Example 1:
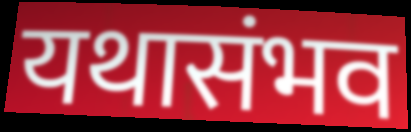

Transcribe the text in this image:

यथासंभव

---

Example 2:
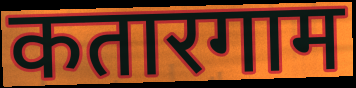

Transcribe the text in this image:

कतारगाम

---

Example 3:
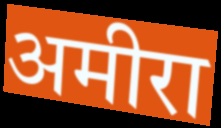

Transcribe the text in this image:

अमीरा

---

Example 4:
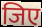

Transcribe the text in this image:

जिए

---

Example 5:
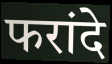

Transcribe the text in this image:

फरांदे